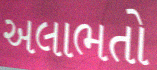
અલાભતો